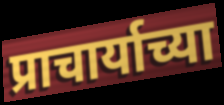
प्राचार्याच्या